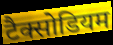
टैक्सोडियम